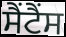
ਸੈਂਟੈਂਸ